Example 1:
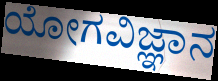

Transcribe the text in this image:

ಯೋಗವಿಜ್ಞಾನ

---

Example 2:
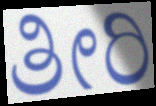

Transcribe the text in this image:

ತೀರಿ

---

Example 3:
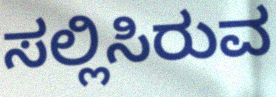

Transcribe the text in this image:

ಸಲ್ಲಿಸಿರುವ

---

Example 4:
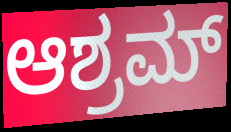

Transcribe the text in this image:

ಆಶ್ರಮ್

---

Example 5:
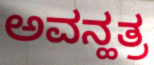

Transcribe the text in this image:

ಅವನ್ಹತ್ರ